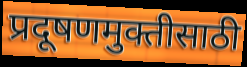
प्रदूषणमुक्तीसाठी